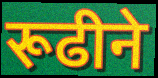
रूढीने